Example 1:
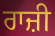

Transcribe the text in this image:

ਰਾਜ਼ੀ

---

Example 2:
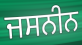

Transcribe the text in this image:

ਜਸਨੀਨ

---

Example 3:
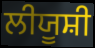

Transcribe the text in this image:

ਲੀਯੂਸ਼ੀ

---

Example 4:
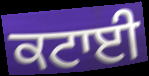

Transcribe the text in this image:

ਕਟਾਈ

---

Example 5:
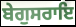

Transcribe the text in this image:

ਬੇਗੁਸਰਾਇ